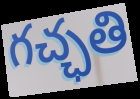
గచ్ఛతి